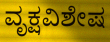
ವೃಕ್ಷವಿಶೇಷ